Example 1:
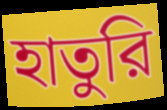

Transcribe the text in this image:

হাতুরি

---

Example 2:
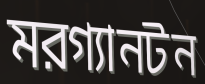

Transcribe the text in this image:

মরগ্যানটন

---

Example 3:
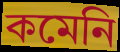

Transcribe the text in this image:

কমেনি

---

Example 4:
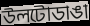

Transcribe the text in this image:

উলটোডাঙা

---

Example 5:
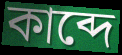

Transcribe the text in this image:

কাব্দে